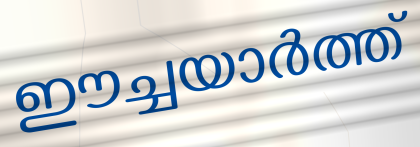
ഈച്ചയാർത്ത്